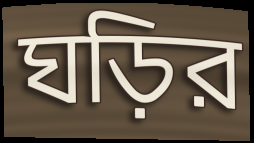
ঘড়ির